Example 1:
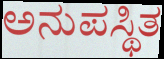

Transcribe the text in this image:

ಅನುಪಸ್ಥಿತ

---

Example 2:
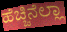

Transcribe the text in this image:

ಹೆಚ್ಚಿನೆಲ್ಲಾ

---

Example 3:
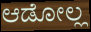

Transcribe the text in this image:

ಆಡೋಲ್ಲ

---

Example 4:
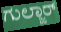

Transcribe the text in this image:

ಗುಲ್ಜಾರ್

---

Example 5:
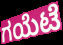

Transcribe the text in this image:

ಗಯೆಟೆ